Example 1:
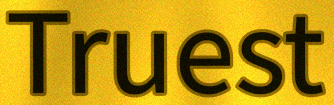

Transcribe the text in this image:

Truest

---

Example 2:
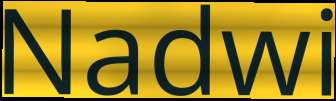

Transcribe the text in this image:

Nadwi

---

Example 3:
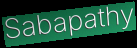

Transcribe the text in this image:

Sabapathy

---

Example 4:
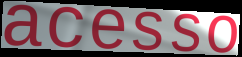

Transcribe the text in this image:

acesso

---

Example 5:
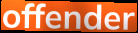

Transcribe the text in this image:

offender